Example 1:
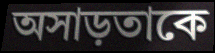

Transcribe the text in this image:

অসাড়তাকে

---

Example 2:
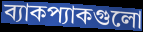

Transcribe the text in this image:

ব্যাকপ্যাকগুলো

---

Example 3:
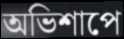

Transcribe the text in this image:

অভিশাপে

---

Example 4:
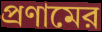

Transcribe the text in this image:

প্রণামের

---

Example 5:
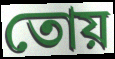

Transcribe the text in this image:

তোয়